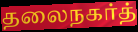
தலைநகர்த்